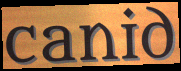
canid